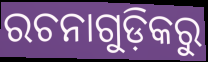
ରଚନାଗୁଡ଼ିକରୁ